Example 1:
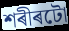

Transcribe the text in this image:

শৰীৰটো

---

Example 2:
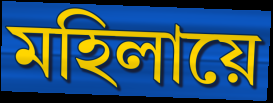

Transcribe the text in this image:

মহিলায়ে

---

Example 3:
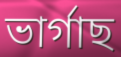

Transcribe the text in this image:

ভাৰ্গাছ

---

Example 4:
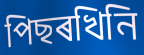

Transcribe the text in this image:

পিছৰখিনি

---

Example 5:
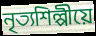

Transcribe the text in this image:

নৃত্যশিল্পীয়ে